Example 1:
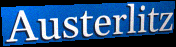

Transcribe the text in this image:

Austerlitz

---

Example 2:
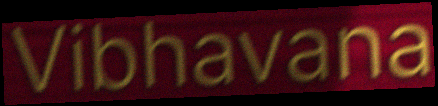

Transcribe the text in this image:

Vibhavana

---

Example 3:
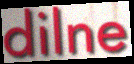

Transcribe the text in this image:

dilne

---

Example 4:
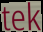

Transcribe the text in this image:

tek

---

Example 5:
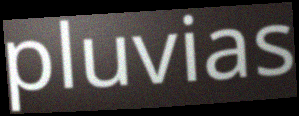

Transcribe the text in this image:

pluvias